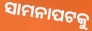
ସାମନାପଟକୁ